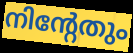
നിന്റേതും